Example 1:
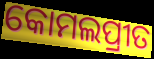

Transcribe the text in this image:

କୋମଲପ୍ରୀତ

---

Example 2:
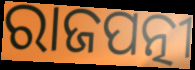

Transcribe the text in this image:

ରାଜପତ୍ନୀ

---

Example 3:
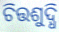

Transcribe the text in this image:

ଚିତ୍ତଶୁଦ୍ଧି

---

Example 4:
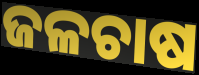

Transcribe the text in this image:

ଜଳଚାଷ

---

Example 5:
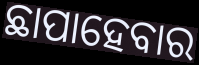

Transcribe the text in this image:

ଛାପାହେବାର